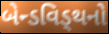
બેન્ડવિડ્થનો